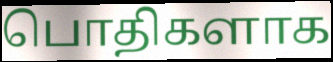
பொதிகளாக